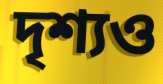
দৃশ্যও